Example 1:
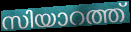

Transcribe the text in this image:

സിയാറത്ത്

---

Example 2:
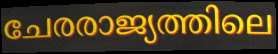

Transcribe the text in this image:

ചേരരാജ്യത്തിലെ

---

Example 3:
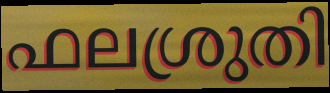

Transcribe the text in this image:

ഫലശ്രുതി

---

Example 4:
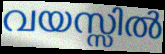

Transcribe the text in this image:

വയസ്സിൽ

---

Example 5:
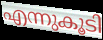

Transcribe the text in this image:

എന്നുകൂടി